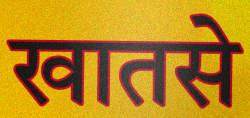
खातसे